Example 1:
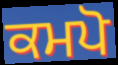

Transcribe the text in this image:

ਕਮਪੋ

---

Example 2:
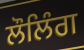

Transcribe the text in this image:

ਲੌਲਿੰਗ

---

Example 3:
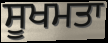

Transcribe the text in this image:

ਸੂਖਮਤਾ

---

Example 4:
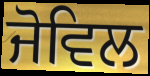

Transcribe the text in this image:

ਜੋਵਿਲ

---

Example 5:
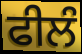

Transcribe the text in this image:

ਫੀਲੰ